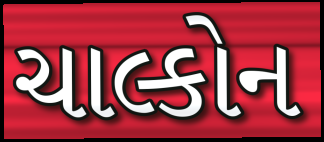
ચાલ્કોન